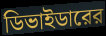
ডিভাইডারের